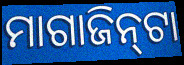
ମାଗାଜିନ୍‌ଟା